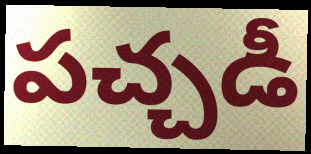
పచ్చడీ